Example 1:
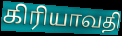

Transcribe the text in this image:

கிரியாவதி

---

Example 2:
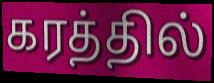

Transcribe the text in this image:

கரத்தில்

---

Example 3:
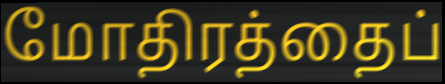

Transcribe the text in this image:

மோதிரத்தைப்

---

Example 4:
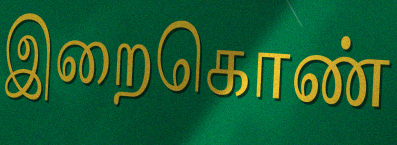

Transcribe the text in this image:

இறைகொண்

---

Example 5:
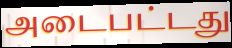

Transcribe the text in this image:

அடைபட்டது